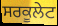
ਸਰਕੂਲੇਟ